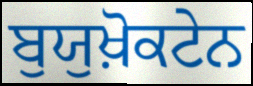
ਬੁਯੁਖ਼ੋਕਟੇਨ